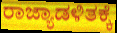
ರಾಜ್ಯಾಡಳಿತಕ್ಕೆ